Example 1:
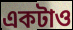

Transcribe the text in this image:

একটাও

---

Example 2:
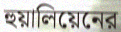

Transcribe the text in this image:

হুয়ালিয়েনের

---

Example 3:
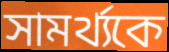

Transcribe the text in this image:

সামর্থ্যকে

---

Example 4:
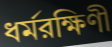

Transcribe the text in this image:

ধর্মরক্ষিণী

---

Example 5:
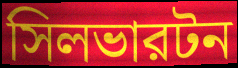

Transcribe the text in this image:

সিলভারটন